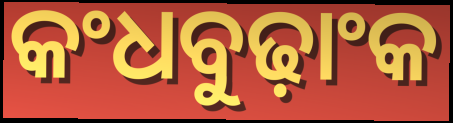
କଂଧବୁଢ଼ାଂକ